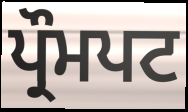
ਪ੍ਰੌਮਪਟ